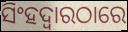
ସିଂହଦ୍ୱାରଠାରେ